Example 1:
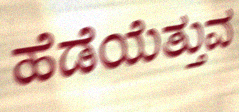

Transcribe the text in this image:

ಹೆಡೆಯೆತ್ತುವ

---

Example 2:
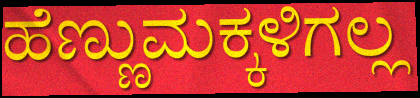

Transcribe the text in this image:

ಹೆಣ್ಣುಮಕ್ಕಳಿಗಲ್ಲ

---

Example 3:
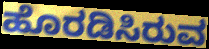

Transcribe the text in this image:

ಹೊರಡಿಸಿರುವ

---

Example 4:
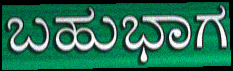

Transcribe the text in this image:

ಬಹುಭಾಗ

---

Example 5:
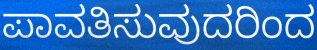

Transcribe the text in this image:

ಪಾವತಿಸುವುದರಿಂದ